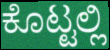
ಕೊಟ್ಟಲ್ಲಿ